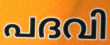
പദവി